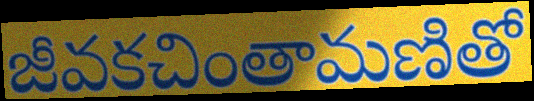
జీవకచింతామణితో